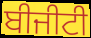
ਬੀਜੀਟੀ